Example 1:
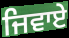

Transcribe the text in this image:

ਜਿਵਾਏ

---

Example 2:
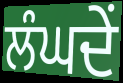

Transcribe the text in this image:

ਲੰਘਦੇਂ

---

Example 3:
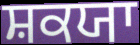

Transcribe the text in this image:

ਸ਼ਕਯਾ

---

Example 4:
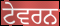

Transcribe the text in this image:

ਟੇਵਰਨ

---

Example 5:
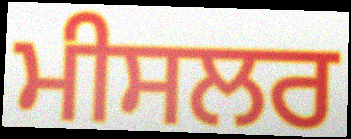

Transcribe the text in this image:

ਮੀਸਲਰ